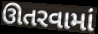
ઊતરવામાં